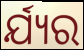
ର୍ଯ୍ୟର